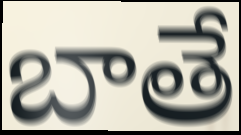
బాతే